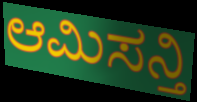
ಆಮಿಸನ್ತಿ